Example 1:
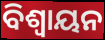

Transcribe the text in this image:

ବିଶ୍ଵାୟନ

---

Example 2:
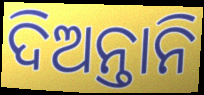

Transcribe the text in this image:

ଦିଅନ୍ତାନି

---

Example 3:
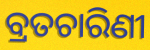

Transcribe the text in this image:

ବ୍ରତଚାରିଣୀ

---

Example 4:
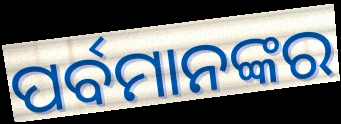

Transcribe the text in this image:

ପର୍ବମାନଙ୍କର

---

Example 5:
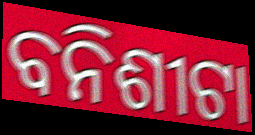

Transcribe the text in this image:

ବନିଶୀଟା